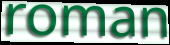
roman